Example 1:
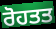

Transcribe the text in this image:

ਰੋਹਤਤ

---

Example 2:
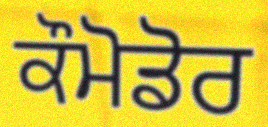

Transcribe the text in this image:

ਕੌਮੋਡੋਰ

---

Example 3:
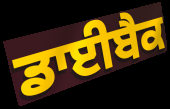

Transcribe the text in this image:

ਡਾਈਬੈਕ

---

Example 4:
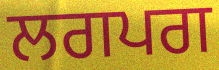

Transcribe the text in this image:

ਲਗਪਗ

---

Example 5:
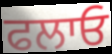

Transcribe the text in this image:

ਫਲਾਓ